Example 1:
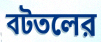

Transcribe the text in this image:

বটতলের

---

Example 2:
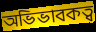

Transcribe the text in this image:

অভিভাবকত্ব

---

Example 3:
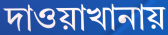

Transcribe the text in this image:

দাওয়াখানায়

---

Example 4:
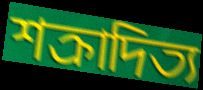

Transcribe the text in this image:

শক্রাদিত্য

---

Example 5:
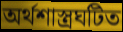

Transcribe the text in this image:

অর্থশাস্ত্রঘটিত